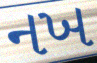
નખ